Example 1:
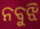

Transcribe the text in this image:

ନବୁଝି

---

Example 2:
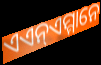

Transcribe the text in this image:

ଏଏନ୍ଏମ୍ମାନେ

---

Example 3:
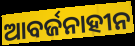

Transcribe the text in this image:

ଆବର୍ଜନାହୀନ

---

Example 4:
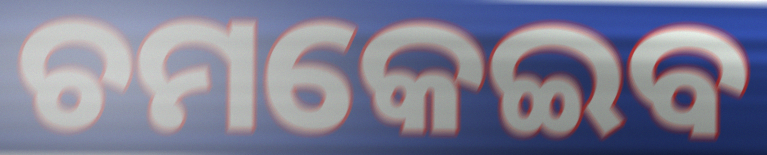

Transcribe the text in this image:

ଚମକେଇବ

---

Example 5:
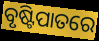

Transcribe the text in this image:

ବୃଷ୍ଟିପାତରେ